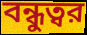
বন্ধুত্বর